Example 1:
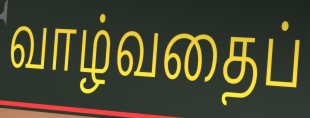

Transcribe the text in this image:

வாழ்வதைப்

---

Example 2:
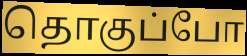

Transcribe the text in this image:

தொகுப்போ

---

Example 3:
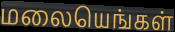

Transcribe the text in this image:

மலையெங்கள்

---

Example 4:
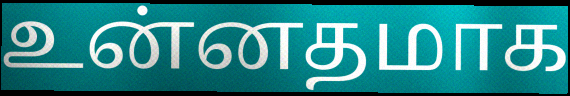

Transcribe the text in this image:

உன்னதமாக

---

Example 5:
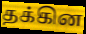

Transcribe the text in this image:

தக்கின